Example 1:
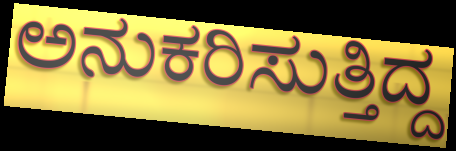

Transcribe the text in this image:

ಅನುಕರಿಸುತ್ತಿದ್ದ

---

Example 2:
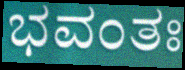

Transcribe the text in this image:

ಭವಂತಃ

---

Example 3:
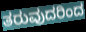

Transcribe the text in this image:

ತರುವುದರಿಂದ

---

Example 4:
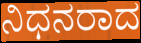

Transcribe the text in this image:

ನಿಧನರಾದ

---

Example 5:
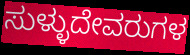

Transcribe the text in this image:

ಸುಳ್ಳುದೇವರುಗಳ